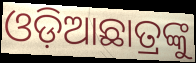
ଓଡ଼ିଆଛାତ୍ରଙ୍କୁ